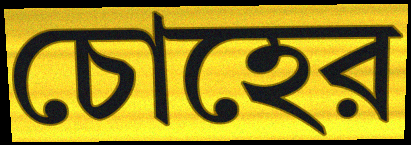
চোহের